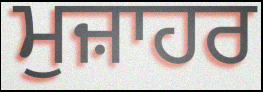
ਮੁਜ਼ਾਹਰ